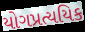
યોગપ્રત્યયિક